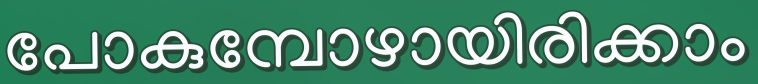
പോകുമ്പോഴായിരിക്കാം